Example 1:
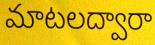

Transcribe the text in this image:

మాటలద్వారా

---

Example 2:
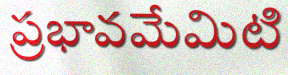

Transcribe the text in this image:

ప్రభావమేమిటి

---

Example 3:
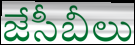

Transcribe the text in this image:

జేసీబీలు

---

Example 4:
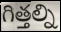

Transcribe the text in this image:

గిత్తల్ని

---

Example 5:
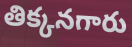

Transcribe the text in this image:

తిక్కనగారు